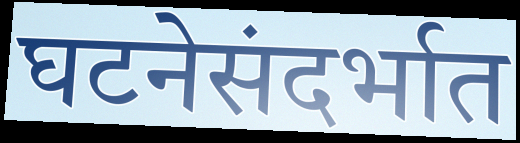
घटनेसंदर्भात